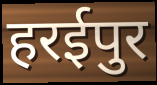
हरईपुर